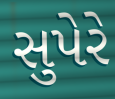
સુપેરે